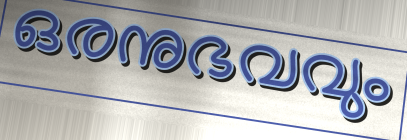
ഒരനുഭവവും